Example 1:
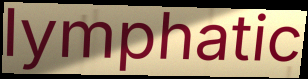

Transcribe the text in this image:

lymphatic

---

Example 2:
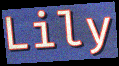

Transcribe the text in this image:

Lily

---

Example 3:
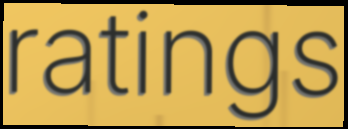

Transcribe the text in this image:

ratings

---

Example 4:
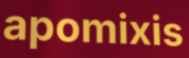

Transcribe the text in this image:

apomixis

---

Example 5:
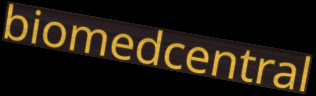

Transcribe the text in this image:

biomedcentral